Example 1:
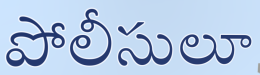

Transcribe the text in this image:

పోలీసులూ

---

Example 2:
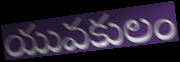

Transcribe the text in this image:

యువకులం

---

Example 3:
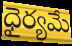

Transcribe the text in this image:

ధైర్యమే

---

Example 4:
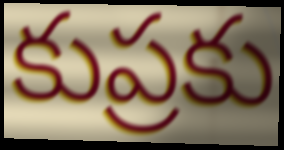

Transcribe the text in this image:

కుప్రకు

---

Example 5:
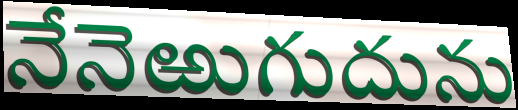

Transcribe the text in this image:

నేనెఱుగుదును